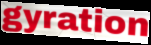
gyration